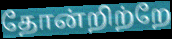
தோன்றிற்றே